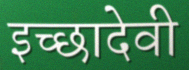
इच्छादेवी